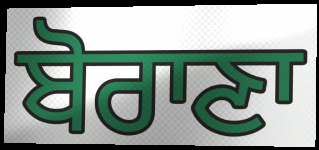
ਬੋਰਾਣਾ